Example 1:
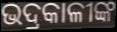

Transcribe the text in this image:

ଭଦ୍ରକାଳୀଙ୍କ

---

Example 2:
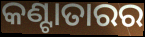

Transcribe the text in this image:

କଣ୍ଟାତାରର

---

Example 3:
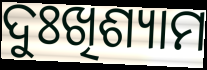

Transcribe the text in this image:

ଦୁଃଖିଶ୍ୟାମ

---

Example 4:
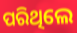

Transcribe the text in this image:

ପରିଥିଲେ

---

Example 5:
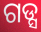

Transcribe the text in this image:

ଗଡ୍ସ